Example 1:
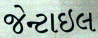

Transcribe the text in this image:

જેન્ટાઇલ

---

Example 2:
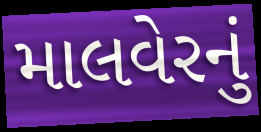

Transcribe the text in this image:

માલવેરનું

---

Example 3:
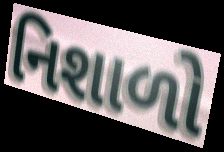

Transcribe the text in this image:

નિશાળો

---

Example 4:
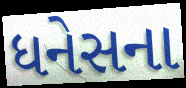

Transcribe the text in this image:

ધનેસના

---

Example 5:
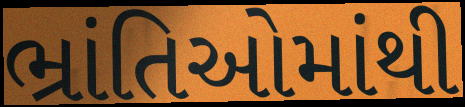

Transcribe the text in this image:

ભ્રાંતિઓમાંથી